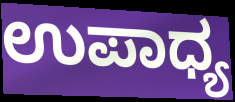
ಉಪಾಧ್ಯ